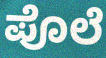
ಪೊಲೆ